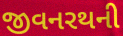
જીવનરથની